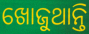
ଖୋଜୁଥାନ୍ତି